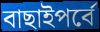
বাছাইপর্বে